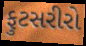
ફુટસરીરો